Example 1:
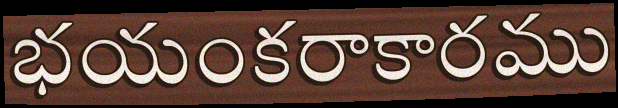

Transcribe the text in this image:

భయంకరాకారము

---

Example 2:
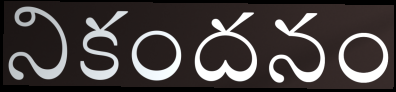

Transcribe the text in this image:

నికందనం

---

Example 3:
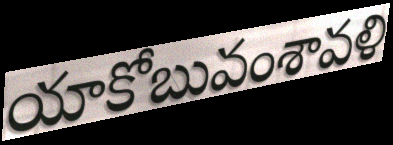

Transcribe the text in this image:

యాకోబువంశావళి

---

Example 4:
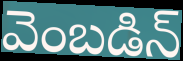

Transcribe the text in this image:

వెంబడిన్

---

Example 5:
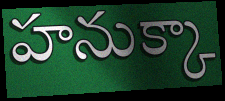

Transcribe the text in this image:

హనుక్కా